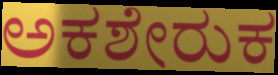
ಅಕಶೇರುಕ